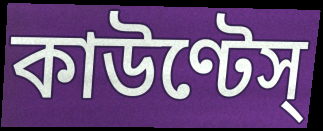
কাউণ্টেস্